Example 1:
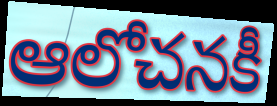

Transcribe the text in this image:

ఆలోచనకీ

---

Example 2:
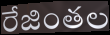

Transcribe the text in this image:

రేజింతల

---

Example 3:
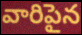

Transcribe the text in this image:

వారిపైన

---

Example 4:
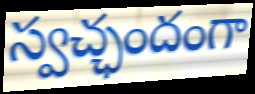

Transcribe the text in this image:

స్వచ్ఛందంగా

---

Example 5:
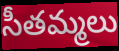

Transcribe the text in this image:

సీతమ్మలు